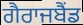
ਗੈਰਾਜਬੈਂਡ